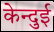
केन्दुई